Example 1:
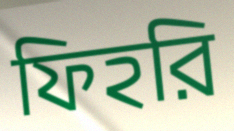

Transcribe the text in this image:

ফিহরি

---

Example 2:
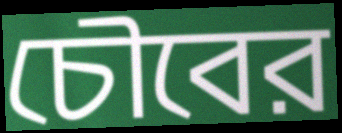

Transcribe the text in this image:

চৌবের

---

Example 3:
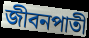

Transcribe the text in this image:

জীবনপাতী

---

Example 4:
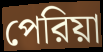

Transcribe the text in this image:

পেরিয়া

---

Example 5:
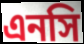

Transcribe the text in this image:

এনসি